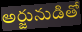
అర్జునుడితో